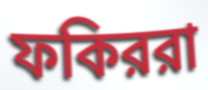
ফকিররা